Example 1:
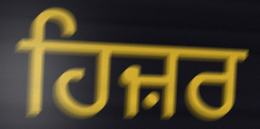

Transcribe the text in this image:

ਹਿਜ਼ਰ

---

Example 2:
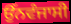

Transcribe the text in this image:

ਉੱਨਵੰਜਾਸੀ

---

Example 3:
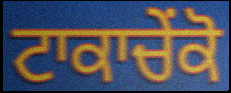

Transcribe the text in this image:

ਟਾਕਾਚੇਂਕੋ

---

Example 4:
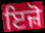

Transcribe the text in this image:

ਇਜ਼ੋ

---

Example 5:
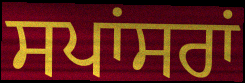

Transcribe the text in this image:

ਸਪਾਂਸਰਾਂ